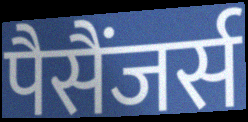
पैसैंजर्स